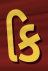
કિ